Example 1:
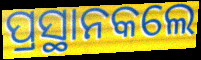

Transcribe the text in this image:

ପ୍ରସ୍ଥାନକଲେ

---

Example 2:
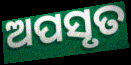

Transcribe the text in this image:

ଅପସୃତ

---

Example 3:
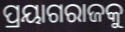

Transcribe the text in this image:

ପ୍ରୟାଗରାଜକୁ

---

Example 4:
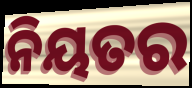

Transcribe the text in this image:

ନିୟତର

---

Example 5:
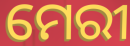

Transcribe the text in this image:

ମେରୀ